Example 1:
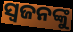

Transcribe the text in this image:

ସ୍ଵଜନଙ୍କୁ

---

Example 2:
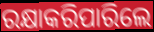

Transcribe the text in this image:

ରକ୍ଷାକରିପାରିଲେ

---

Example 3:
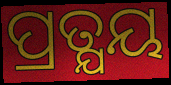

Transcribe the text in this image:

ପ୍ରତ୍ଯୟ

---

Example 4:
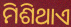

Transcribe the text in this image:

ମିଶିଥାଏ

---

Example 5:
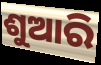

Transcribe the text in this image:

ଶୁଆରି